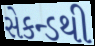
સેકન્ડથી